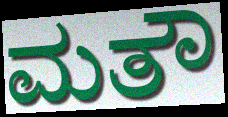
ಮತೌ